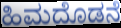
ಹಿಮದೊಡನೆ